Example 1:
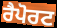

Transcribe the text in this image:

ਰੈਪੋਰਟ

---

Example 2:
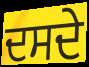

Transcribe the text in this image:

ਦਸਦੇ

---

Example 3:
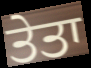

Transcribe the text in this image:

ਤੇਤਾ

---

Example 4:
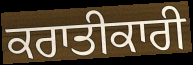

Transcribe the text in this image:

ਕਰਾਤੀਕਾਰੀ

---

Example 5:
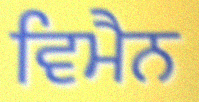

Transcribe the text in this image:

ਵਿਮੈਨ